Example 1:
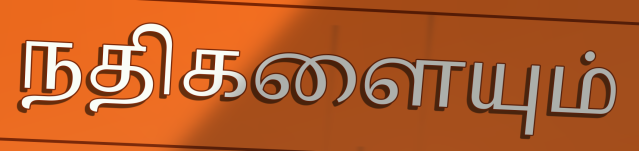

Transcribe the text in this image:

நதிகளையும்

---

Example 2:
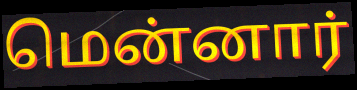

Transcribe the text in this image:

மென்னார்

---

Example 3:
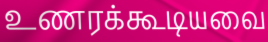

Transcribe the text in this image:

உணரக்கூடியவை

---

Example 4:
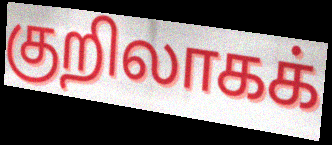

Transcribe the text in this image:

குறிலாகக்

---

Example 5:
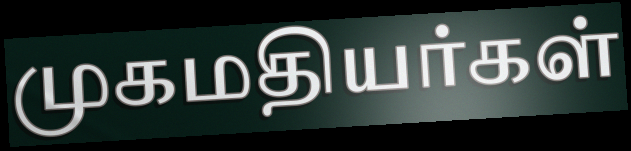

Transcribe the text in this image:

முகமதியர்கள்